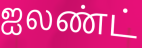
ஐலண்ட்